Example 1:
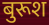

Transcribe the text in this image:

बुरूश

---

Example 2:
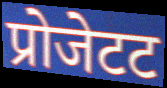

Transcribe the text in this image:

प्रोजेटट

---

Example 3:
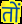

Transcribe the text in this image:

तों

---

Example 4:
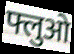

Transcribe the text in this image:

फ्लुओ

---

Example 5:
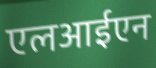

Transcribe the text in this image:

एलआईएन